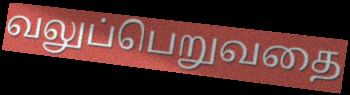
வலுப்பெறுவதை